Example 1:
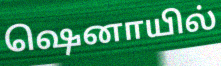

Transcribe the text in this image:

ஷெனாயில்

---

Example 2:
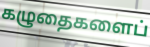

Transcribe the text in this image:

கழுதைகளைப்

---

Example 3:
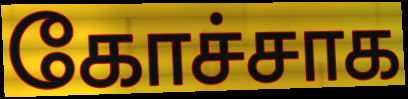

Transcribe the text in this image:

கோச்சாக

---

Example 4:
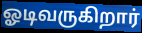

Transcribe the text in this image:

ஓடிவருகிறார்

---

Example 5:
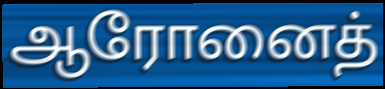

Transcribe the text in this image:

ஆரோனைத்